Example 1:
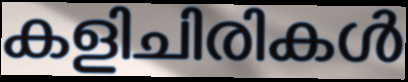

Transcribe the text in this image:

കളിചിരികൾ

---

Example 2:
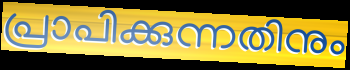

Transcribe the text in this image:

പ്രാപിക്കുന്നതിനും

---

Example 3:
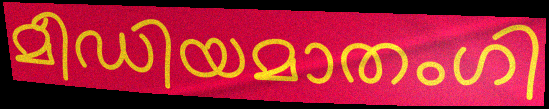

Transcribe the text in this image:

മീഡിയമാതംഗി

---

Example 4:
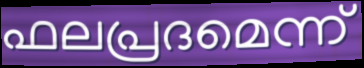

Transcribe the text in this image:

ഫലപ്രദമെന്ന്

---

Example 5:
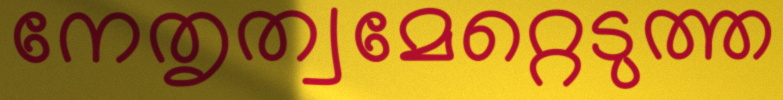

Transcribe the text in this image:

നേതൃത്വമേറ്റെടുത്ത